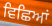
ਵਿਛਿਆਂ